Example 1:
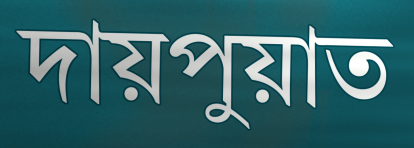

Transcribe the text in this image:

দায়পুয়াত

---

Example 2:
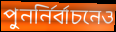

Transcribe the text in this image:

পুনর্নির্বাচনেও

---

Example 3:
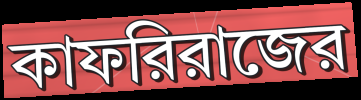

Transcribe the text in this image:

কাফরিরাজের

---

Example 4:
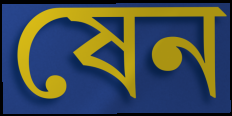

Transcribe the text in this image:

ষেন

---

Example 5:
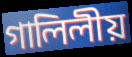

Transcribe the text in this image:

গালিলীয়